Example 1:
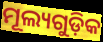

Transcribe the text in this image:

ମୂଲ୍ୟଗୁଡ଼ିକ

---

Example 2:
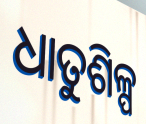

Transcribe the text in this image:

ଧାତୁଶିଳ୍ପ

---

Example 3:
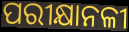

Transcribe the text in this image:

ପରୀକ୍ଷାନଳୀ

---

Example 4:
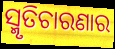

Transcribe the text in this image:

ସ୍ମୃତିଚାରଣାର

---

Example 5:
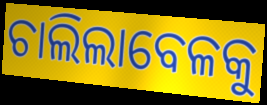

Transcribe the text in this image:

ଚାଲିଲାବେଳକୁ